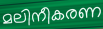
മലിനീകരണ